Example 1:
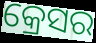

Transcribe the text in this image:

କ୍ରେସର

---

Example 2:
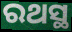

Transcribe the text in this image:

ରଥସ୍ଥ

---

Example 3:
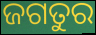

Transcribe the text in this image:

ଜଗତୁର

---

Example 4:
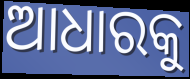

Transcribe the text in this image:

ଆଧାରକୁ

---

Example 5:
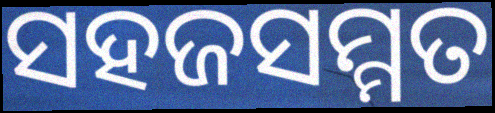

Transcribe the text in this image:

ସହଜସମ୍ମତ